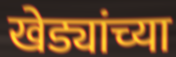
खेड्यांच्या